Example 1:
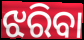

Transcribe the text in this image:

ଝରିବା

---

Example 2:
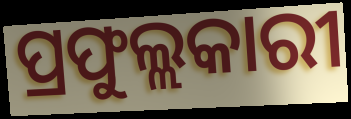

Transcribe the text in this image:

ପ୍ରଫୁଲ୍ଲକାରୀ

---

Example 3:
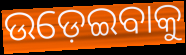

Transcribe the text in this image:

ଉଡ଼େଇବାକୁ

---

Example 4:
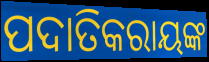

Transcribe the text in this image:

ପଦାତିକରାୟଙ୍କ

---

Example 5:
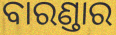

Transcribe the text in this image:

ବାରଣ୍ଡାର